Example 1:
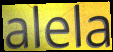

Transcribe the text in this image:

alela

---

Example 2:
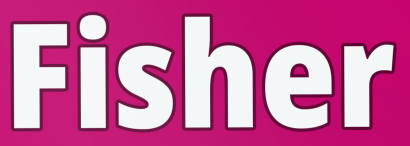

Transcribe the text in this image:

Fisher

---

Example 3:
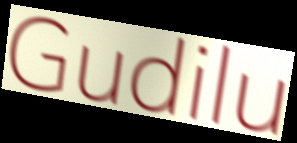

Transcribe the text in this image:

Gudilu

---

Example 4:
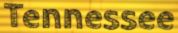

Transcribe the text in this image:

Tennessee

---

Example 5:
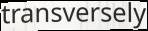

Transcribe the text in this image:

transversely